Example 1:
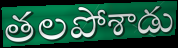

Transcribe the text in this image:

తలపోశాడు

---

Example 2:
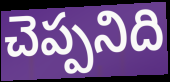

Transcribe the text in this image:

చెప్పనిది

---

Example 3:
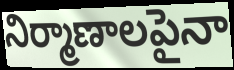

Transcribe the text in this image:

నిర్మాణాలపైనా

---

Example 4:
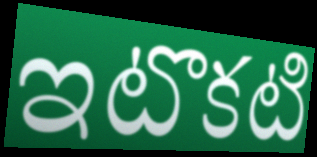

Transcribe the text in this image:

ఇటొకటి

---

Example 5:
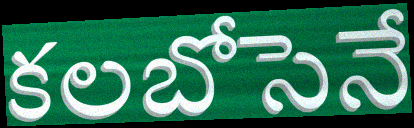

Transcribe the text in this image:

కలబోసెనే